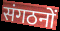
संगठनों